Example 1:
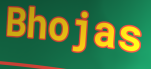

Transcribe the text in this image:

Bhojas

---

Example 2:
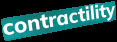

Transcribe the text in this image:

contractility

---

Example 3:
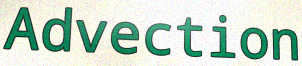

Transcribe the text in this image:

Advection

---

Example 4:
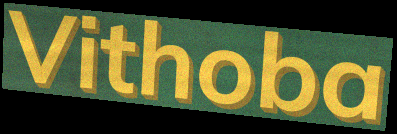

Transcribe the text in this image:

Vithoba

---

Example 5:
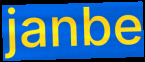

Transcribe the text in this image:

janbe